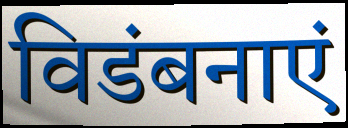
विडंबनाएं